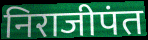
निराजीपंत